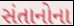
સંતાનોના